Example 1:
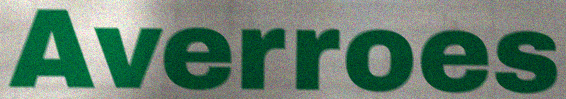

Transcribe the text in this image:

Averroes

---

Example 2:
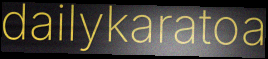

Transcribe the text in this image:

dailykaratoa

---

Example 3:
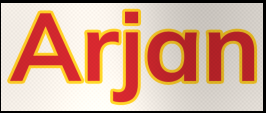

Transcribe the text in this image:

Arjan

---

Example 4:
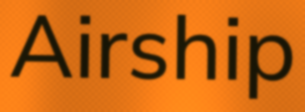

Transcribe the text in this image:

Airship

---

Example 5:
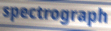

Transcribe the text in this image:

spectrograph